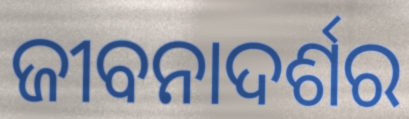
ଜୀବନାଦର୍ଶର